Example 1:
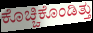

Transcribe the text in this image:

ಕೊಚ್ಚಿಕೊಂಡಿತ್ತು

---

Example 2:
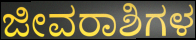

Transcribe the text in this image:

ಜೀವರಾಶಿಗಳ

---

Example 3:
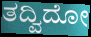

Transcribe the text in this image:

ತದ್ವಿದೋ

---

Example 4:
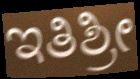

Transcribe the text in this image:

ಇತಿಶ್ರೀ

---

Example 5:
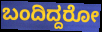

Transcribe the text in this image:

ಬಂದಿದ್ದರೋ